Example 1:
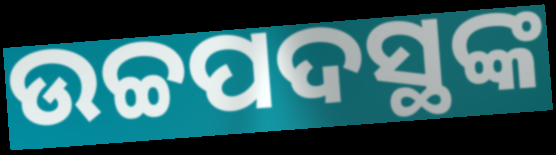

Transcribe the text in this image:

ଉଚ୍ଚପଦସ୍ଥଙ୍କ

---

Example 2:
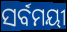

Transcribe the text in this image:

ସର୍ବମୟୀ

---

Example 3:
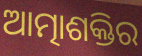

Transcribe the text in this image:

ଆତ୍ମାଶକ୍ତିର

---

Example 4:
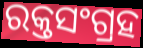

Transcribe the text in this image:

ରକ୍ତସଂଗ୍ରହ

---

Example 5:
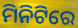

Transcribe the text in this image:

ମିନିଟିରେ